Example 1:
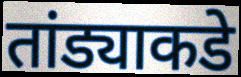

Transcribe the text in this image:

तांड्याकडे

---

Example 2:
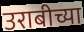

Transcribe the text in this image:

उराबीच्या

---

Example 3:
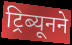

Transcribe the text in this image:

ट्रिब्यूनने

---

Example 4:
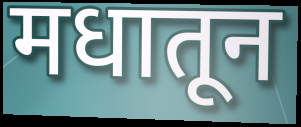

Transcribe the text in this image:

मधातून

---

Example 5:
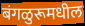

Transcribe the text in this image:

बंगळुरूमधील